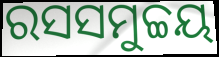
ରସସମୁଚ୍ଚୟ